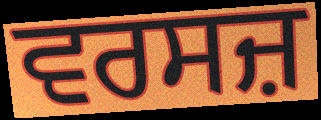
ਵਰਸਜ਼